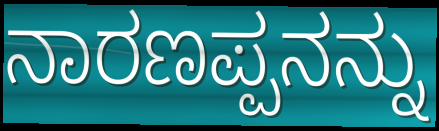
ನಾರಣಪ್ಪನನ್ನು